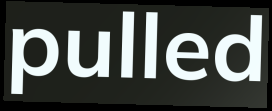
pulled